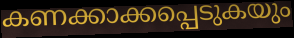
കണക്കാക്കപ്പെടുകയും